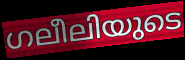
ഗലീലിയുടെ